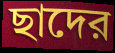
ছাদের